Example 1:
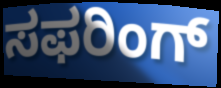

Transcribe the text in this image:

ಸಫರಿಂಗ್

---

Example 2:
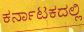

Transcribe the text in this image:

ಕರ್ನಾಟಕದಲ್ಲಿ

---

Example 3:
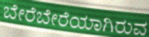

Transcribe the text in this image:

ಬೇರೆಬೇರೆಯಾಗಿರುವ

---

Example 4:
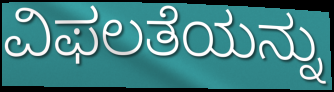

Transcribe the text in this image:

ವಿಫಲತೆಯನ್ನು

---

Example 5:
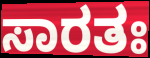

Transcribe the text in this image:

ಸಾರತಃ